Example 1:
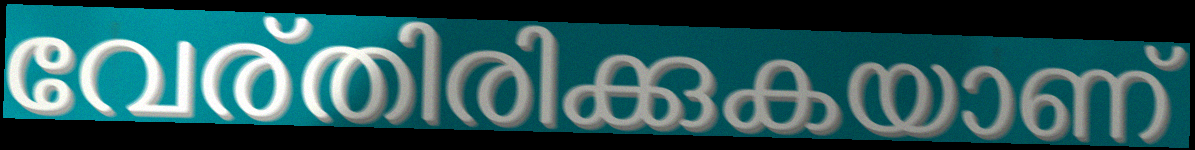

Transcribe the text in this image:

വേര്തിരിക്കുകയാണ്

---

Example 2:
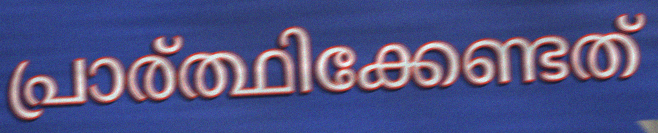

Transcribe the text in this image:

പ്രാര്ത്ഥിക്കേണ്ടത്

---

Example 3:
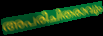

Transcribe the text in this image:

അപരിചിതരാവും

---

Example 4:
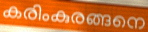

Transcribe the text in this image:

കരിംകുരങ്ങനെ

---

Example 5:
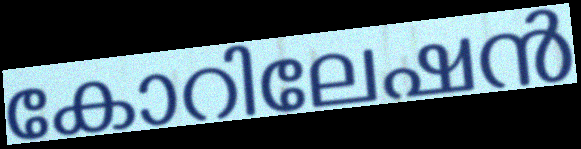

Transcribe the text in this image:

കോറിലേഷൻ